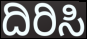
ದಿರಿಸಿ